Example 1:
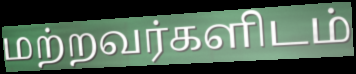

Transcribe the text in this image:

மற்றவர்களிடம்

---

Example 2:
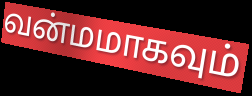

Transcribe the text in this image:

வன்மமாகவும்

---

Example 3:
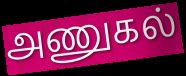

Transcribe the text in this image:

அணுகல்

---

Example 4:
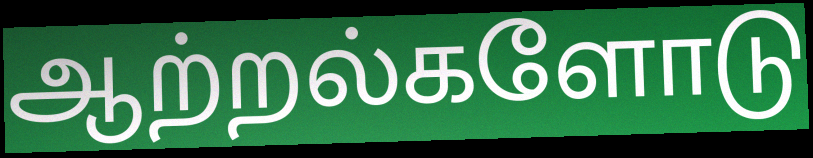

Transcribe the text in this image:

ஆற்றல்களோடு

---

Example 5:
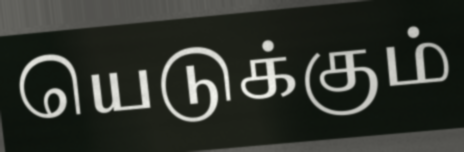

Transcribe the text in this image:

யெடுக்கும்